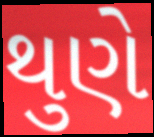
થુણે